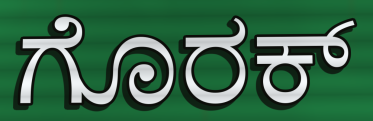
ಗೊರಕ್